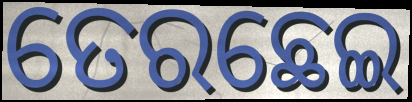
ତେରଛେଇ